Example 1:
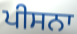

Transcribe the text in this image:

ਪੀਸਨਾ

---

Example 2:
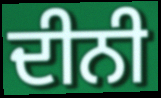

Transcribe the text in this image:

ਦੀਨੀ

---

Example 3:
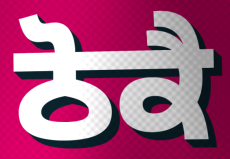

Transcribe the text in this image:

ਠੋਕੈ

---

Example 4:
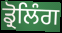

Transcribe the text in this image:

ਡ੍ਰੋਲਿੰਗ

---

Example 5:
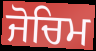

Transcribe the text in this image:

ਜੋਚਿਮ